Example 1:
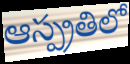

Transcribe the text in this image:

ఆస్ప్రతిలో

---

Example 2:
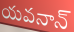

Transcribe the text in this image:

యవనాన్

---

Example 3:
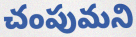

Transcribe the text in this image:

చంపుమని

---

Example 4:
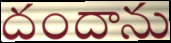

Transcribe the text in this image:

దందాను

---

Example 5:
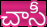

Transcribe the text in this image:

చాసీ